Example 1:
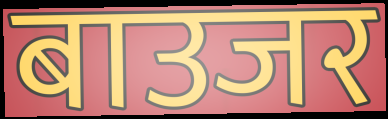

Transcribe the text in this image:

बाउजर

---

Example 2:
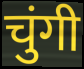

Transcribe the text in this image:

चुंगी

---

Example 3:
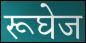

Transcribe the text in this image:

रूघेज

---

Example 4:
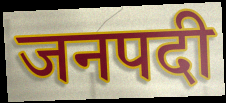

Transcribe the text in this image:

जनपदी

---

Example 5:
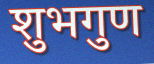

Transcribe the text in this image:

शुभगुण